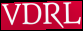
VDRL